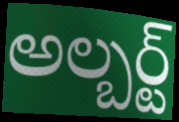
అల్బర్ట్